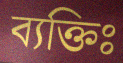
ব্যক্তিঃ